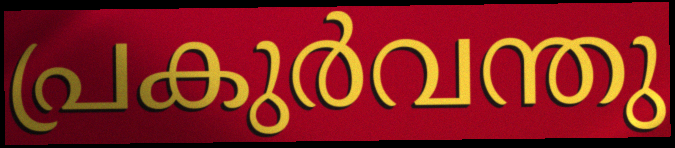
പ്രകുർവന്തു